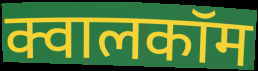
क्वालकॉम